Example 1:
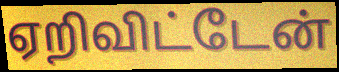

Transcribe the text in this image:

ஏறிவிட்டேன்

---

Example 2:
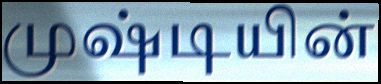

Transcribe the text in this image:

முஷ்டியின்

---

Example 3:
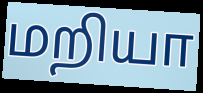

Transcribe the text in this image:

மறியா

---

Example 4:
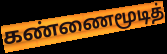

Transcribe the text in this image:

கண்ணைமூடித்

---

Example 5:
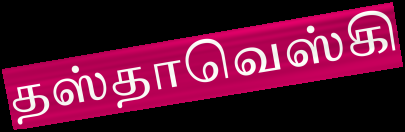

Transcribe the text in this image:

தஸ்தாவெஸ்கி